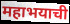
महाभयाची